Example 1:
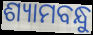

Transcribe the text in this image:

ଶ୍ୟାମବନ୍ଧୁ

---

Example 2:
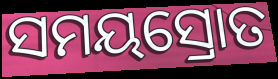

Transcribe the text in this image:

ସମୟସ୍ରୋତ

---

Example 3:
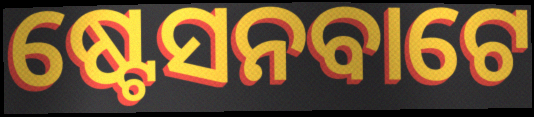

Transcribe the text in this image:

ଷ୍ଟେସନବାଟେ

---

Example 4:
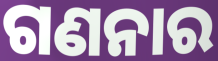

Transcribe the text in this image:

ଗଣନାର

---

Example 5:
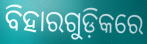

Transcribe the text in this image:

ବିହାରଗୁଡ଼ିକରେ